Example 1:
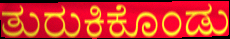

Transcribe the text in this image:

ತುರುಕಿಕೊಂಡು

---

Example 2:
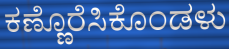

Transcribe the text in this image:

ಕಣ್ಣೊರೆಸಿಕೊಂಡಳು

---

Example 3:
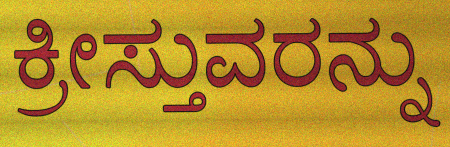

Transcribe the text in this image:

ಕ್ರೀಸ್ತುವರನ್ನು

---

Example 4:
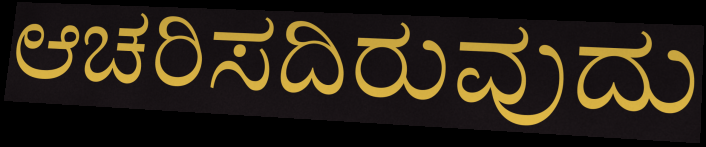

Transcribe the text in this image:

ಆಚರಿಸದಿರುವುದು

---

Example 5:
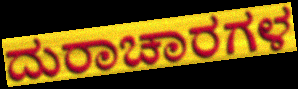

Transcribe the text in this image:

ದುರಾಚಾರಗಳ